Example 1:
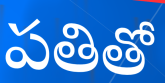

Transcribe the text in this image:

పతితో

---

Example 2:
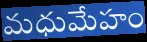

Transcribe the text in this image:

మధుమేహం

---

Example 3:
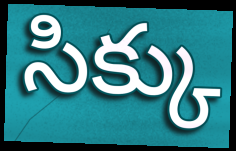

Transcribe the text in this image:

సిక్కు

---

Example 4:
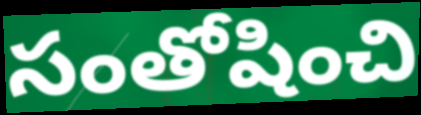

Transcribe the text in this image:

సంతోషించి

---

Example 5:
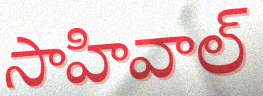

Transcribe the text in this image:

సాహివాల్